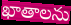
ఖాతాలను